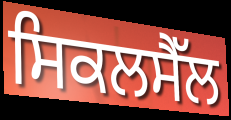
ਸਿਕਲਸੈੱਲ